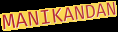
MANIKANDAN